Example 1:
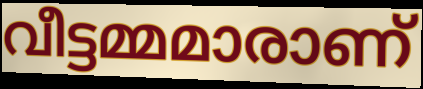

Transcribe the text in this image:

വീട്ടമ്മമാരാണ്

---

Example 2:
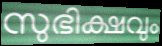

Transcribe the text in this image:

സുഭിക്ഷവും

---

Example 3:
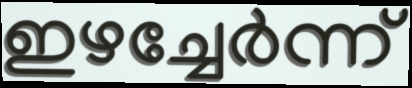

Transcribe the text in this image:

ഇഴച്ചേർന്ന്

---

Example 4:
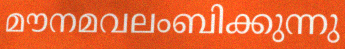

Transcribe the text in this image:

മൗനമവലംബിക്കുന്നു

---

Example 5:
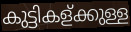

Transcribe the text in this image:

കുട്ടികള്ക്കുള്ള